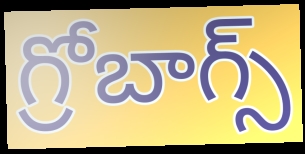
గ్రోబాగ్స్